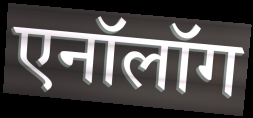
एनॉलॉग